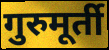
गुरुमूर्ती